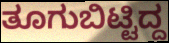
ತೂಗುಬಿಟ್ಟಿದ್ದ